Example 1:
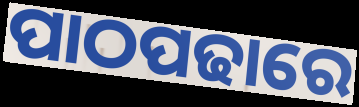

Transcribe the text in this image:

ପାଠପଢାରେ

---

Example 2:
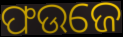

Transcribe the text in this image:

ଫଉଜେ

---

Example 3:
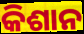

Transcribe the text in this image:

କିଶାନ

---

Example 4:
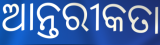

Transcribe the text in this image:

ଆନ୍ତରୀକତା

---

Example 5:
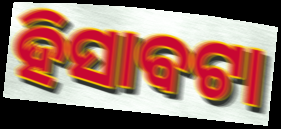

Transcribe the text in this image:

ହିସାବଟା